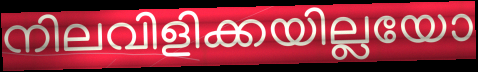
നിലവിളിക്കയില്ലയോ